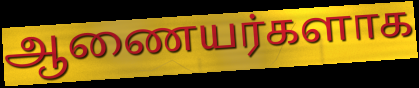
ஆணையர்களாக